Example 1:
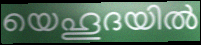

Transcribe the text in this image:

യെഹൂദയിൽ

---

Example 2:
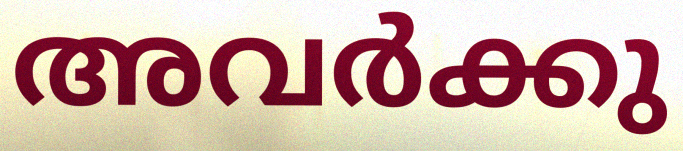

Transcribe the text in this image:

അവർക്കു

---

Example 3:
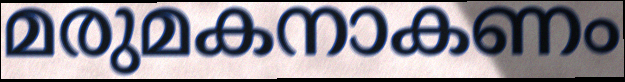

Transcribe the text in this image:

മരുമകനാകണം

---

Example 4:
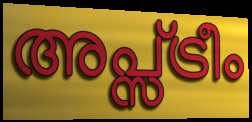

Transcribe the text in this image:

അപ്സ്ട്രീം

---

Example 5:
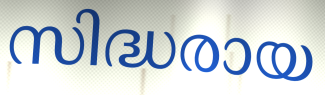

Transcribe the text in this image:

സിദ്ധരായ